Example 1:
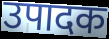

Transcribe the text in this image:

उपादक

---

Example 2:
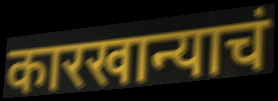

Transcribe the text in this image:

कारखान्याचं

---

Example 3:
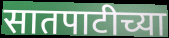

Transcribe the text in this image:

सातपाटीच्या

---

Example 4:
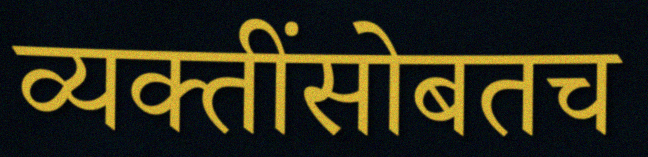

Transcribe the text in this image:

व्यक्तींसोबतच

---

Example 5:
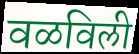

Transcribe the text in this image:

वळविली